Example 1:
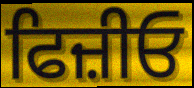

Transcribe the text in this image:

ਫਿਜ਼ੀਓ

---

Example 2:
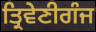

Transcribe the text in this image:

ਤ੍ਰਿਵੇਣੀਗੰਜ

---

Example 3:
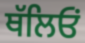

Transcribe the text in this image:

ਥੱਲਿਓਂ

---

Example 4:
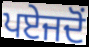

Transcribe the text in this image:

ਪਏਜਦੋਂ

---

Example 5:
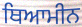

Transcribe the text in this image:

ਥਿਆਮੀਨ